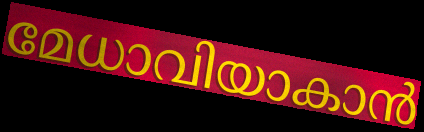
മേധാവിയാകാൻ